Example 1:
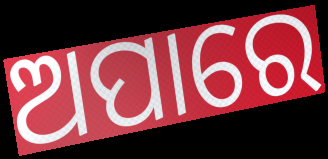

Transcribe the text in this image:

ଅପାରେ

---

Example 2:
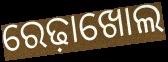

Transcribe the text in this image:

ରେଢ଼ାଖୋଲ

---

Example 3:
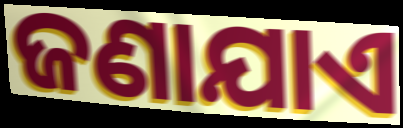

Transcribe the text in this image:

ଜଣାଯାଏ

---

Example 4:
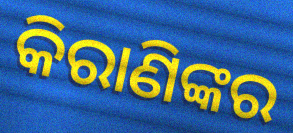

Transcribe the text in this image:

କିରାଣିଙ୍କର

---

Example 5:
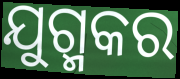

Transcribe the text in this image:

ଯୁଗ୍ମକର